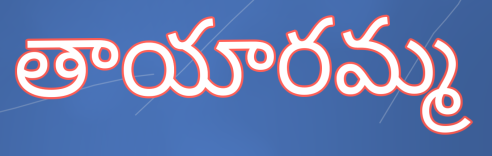
తాయారమ్మ